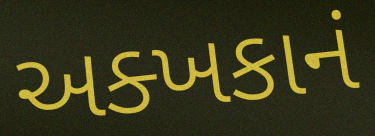
અક્ખકાનં